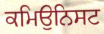
ਕਮਿਉਨਿਸਟ